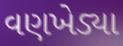
વણખેડ્યા